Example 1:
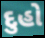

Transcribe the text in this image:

દુહો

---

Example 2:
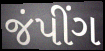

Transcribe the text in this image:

જંપીંગ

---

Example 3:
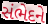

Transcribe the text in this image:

સંભેદને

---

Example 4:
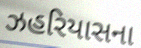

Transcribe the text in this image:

ઝહરિયાસના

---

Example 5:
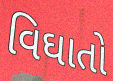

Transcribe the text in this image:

વિઘાતો